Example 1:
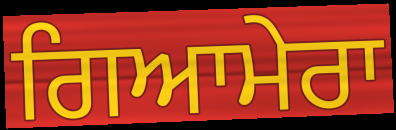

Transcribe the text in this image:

ਗਿਆਮੇਰਾ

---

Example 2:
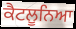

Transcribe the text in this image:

ਕੈਟਲੂਨਿਆ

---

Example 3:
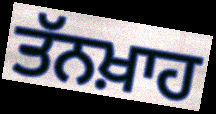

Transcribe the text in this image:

ਤੱਨਖ਼ਾਹ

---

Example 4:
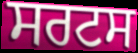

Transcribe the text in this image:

ਸਰਟਸ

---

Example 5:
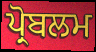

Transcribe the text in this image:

ਪ੍ਰੋਬਲਮ